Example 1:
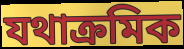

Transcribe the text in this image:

যথাক্ৰমিক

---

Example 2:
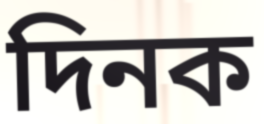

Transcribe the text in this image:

দিনক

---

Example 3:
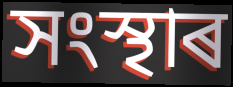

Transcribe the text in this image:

সংস্থাৰ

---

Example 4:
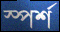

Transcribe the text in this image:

স্পৰ্শ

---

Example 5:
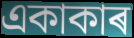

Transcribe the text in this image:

একাকাৰ